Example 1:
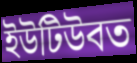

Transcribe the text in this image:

ইউটিউবত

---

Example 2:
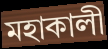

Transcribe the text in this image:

মহাকালী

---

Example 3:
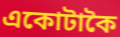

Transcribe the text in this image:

একোটাকৈ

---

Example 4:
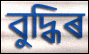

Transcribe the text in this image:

বুদ্ধিৰ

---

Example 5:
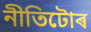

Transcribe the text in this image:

নীতিটোৰ